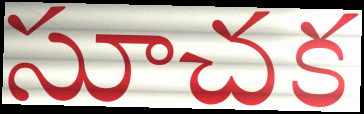
సూచక